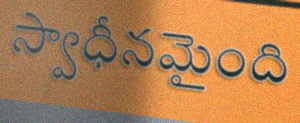
స్వాధీనమైంది